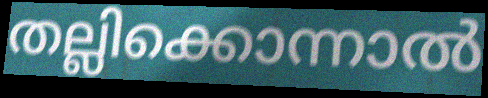
തല്ലിക്കൊന്നാൽ